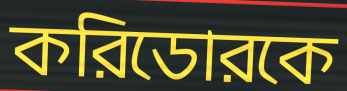
করিডোরকে